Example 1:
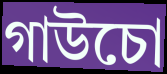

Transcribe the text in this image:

গাউচো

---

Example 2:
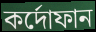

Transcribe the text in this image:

কর্দোফান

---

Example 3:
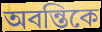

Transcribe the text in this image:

অবন্তিকে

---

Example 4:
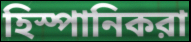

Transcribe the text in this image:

হিস্পানিকরা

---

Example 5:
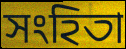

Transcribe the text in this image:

সংহিতা